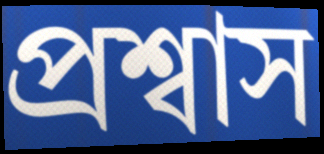
প্রশ্বাস